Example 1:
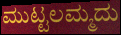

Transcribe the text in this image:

ಮುಟ್ಟಲಮ್ಮದು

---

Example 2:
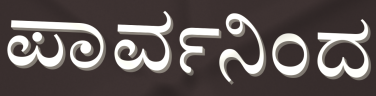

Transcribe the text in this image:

ಪಾರ್ವನಿಂದ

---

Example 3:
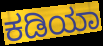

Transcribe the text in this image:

ಕಡಿಯಾ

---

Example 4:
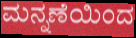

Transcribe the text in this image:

ಮನ್ನಣೆಯಿಂದ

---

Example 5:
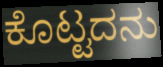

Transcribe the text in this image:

ಕೊಟ್ಟದನು